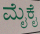
ಮೈಕೈ